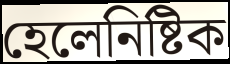
হেলেনিষ্টিক